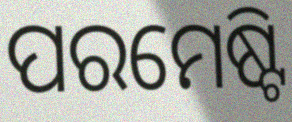
ପରମେଷ୍ଟି